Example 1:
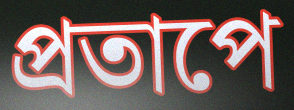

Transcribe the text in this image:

প্রতাপে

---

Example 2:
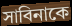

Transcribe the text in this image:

সাবিনাকে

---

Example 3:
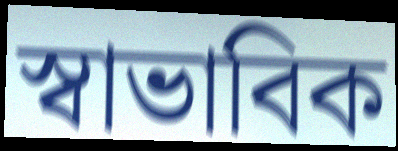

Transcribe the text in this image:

স্বাভাবিক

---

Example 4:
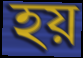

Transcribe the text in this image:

হয়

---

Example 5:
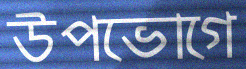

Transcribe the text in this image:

উপভোগে